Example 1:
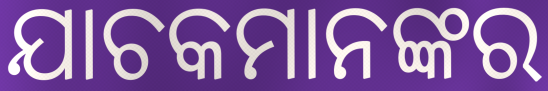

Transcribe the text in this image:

ଯାଚକମାନଙ୍କର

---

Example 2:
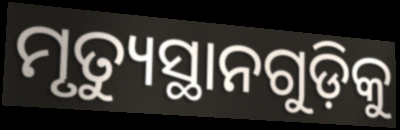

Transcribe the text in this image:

ମୃତ୍ୟୁସ୍ଥାନଗୁଡ଼ିକୁ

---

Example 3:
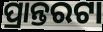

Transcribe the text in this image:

ପ୍ରାନ୍ତରଟା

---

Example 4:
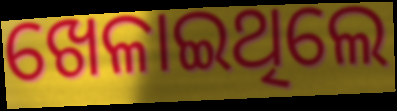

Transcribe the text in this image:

ଖେଳାଇଥିଲେ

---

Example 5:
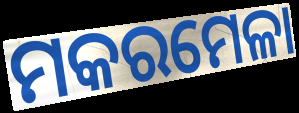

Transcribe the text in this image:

ମକରମେଳା